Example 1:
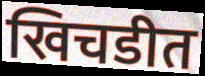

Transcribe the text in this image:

खिचडीत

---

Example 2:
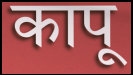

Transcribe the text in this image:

कापू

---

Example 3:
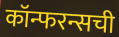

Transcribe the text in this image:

कॉन्फरन्सची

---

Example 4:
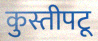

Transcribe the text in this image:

कुस्तीपटू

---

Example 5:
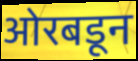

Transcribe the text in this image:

ओरबडून